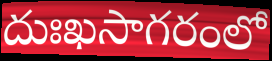
దుఃఖసాగరంలో